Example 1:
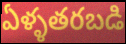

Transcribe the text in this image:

ఏళ్ళతరబడి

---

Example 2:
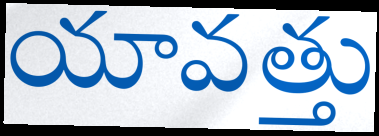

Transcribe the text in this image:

యావత్తు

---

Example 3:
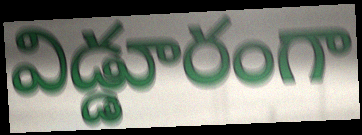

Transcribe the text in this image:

విడ్డూరంగా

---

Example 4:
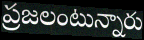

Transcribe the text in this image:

ప్రజలంటున్నారు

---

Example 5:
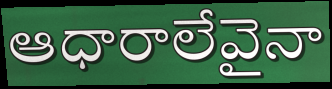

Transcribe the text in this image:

ఆధారాలేవైనా